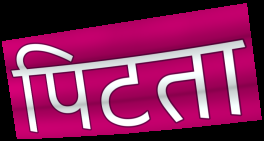
पिटता